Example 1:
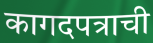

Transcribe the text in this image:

कागदपत्राची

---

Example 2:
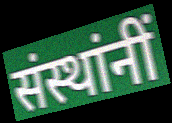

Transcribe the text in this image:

संस्थांनीं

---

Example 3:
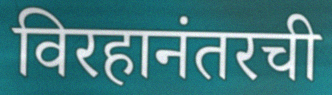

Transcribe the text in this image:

विरहानंतरची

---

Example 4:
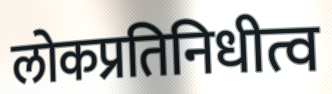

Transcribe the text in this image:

लोकप्रतिनिधीत्व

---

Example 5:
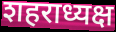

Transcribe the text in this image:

शहराध्यक्ष